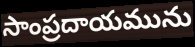
సాంప్రదాయమును